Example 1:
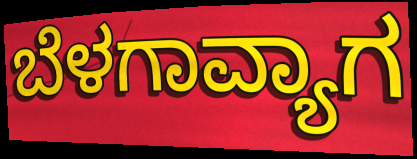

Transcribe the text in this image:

ಬೆಳಗಾವ್ಯಾಗ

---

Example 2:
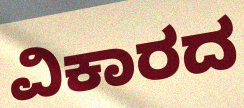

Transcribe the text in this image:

ವಿಕಾರದ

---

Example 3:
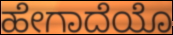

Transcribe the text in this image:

ಹೇಗಾದೆಯೊ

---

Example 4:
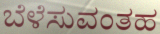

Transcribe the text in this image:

ಬೆಳೆಸುವಂತಹ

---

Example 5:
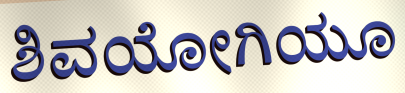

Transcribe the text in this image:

ಶಿವಯೋಗಿಯೂ